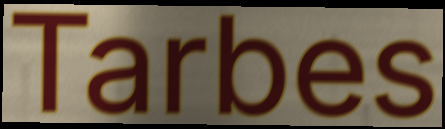
Tarbes